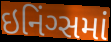
ઇનિંગ્સમાં